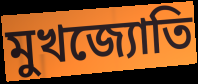
মুখজ্যোতি